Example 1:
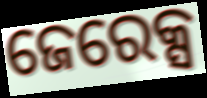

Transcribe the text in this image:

ଜେରେକ୍ସ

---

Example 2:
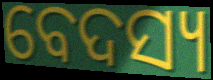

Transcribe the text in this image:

ବେଦସ୍ୟ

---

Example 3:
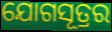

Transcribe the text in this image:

ଯୋଗସୂତ୍ରର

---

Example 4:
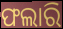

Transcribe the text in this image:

ଫଲାରି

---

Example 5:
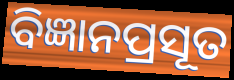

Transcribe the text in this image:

ବିଜ୍ଞାନପ୍ରସୂତ